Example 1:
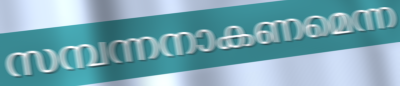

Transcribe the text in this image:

സമ്പന്നനാകണമെന്ന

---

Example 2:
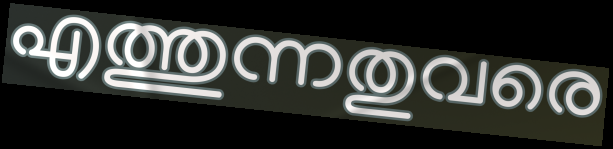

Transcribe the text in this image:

എത്തുന്നതുവരെ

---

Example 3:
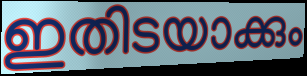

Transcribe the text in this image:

ഇതിടയാക്കും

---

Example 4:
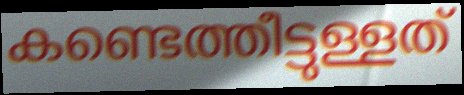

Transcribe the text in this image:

കണ്ടെത്തീട്ടുള്ളത്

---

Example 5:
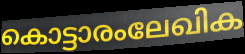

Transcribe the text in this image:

കൊട്ടാരംലേഖിക